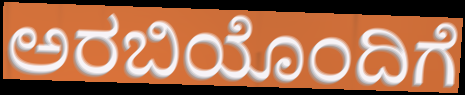
ಅರಬಿಯೊಂದಿಗೆ